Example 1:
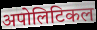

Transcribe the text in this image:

अपोलिटिकल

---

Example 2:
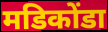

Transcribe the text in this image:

मडिकोंडा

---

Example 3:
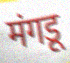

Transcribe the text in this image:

मंगडू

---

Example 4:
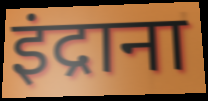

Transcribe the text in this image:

इंद्राना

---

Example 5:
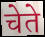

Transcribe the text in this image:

चेते